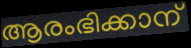
ആരംഭിക്കാന്